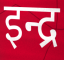
इन्द्र